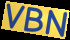
VBN